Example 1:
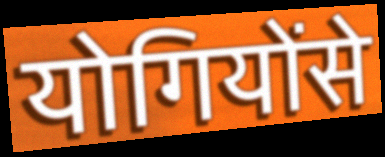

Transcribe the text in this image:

योगियोंसे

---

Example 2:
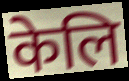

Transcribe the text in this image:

केलि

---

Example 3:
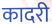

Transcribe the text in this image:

कादरी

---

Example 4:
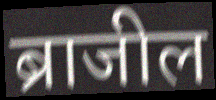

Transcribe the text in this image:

ब्राजील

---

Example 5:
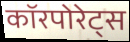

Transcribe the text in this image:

कॉरपोरेट्स